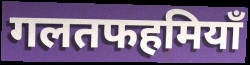
गलतफहमियाँ